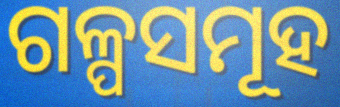
ଗଳ୍ପସମୂହ